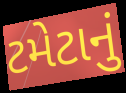
ટમેટાનું